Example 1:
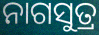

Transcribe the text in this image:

ନାଗସୁତ୍ର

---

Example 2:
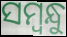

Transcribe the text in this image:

ସମ୍ବନ୍ଧୁ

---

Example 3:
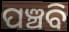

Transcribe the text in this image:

ପଞ୍ଚବି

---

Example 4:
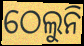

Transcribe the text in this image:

ଠେଲୁନି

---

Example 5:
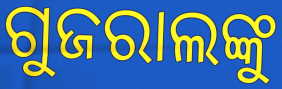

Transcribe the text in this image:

ଗୁଜରାଲଙ୍କୁ